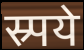
स्र्पये